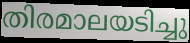
തിരമാലയടിച്ചു